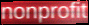
nonprofit